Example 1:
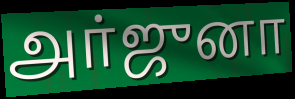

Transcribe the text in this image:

அர்ஜுனா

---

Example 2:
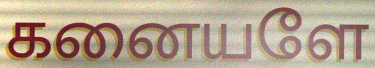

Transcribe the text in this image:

கனையளே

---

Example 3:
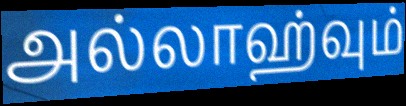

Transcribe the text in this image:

அல்லாஹ்வும்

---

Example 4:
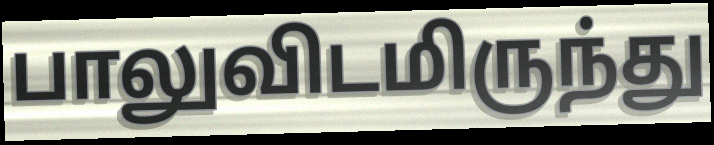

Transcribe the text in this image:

பாலுவிடமிருந்து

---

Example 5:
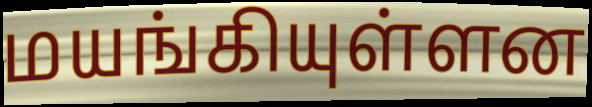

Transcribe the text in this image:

மயங்கியுள்ளன